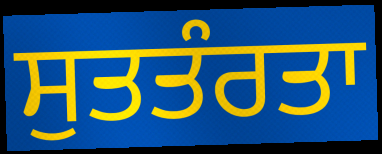
ਸੁਤਤੰਰਤਾ